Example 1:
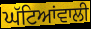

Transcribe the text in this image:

ਘੱਟਿਆਂਵਾਲੀ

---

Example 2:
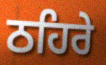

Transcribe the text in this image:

ਠਹਿਰੇ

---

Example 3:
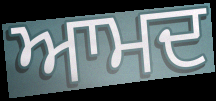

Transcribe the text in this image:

ਆਮਦ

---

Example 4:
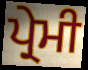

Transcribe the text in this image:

ਪ੍ਰੇਮੀ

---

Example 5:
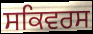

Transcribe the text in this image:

ਸਕਿਵਰਸ